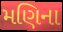
મણિના